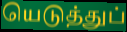
யெடுத்துப்